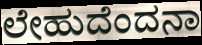
ಲೇಹುದೆಂದನಾ